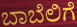
ಬಾಬೆಲಿಗೆ